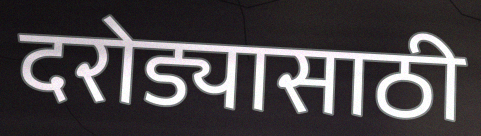
दरोड्यासाठी